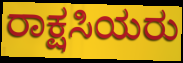
ರಾಕ್ಷಸಿಯರು